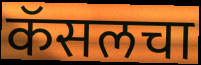
कॅसलचा